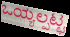
ಒಯ್ಯಲ್ಪಟ್ಟ